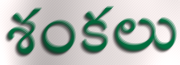
శంకలు